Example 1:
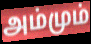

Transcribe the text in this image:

அம்மும்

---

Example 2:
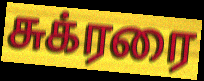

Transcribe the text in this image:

சுக்ரரை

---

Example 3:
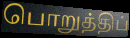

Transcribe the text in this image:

பொறுத்திப்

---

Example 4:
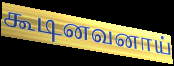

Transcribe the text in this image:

கூடினவனாய்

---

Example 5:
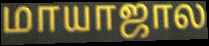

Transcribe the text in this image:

மாயாஜால